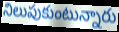
నిలుపుకుంటున్నారు